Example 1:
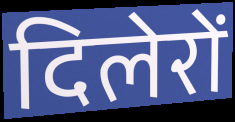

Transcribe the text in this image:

दिलेरों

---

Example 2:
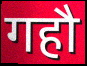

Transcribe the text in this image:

गहौ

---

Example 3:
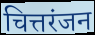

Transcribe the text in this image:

चित्तरंजन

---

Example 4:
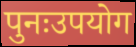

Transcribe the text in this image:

पुनःउपयोग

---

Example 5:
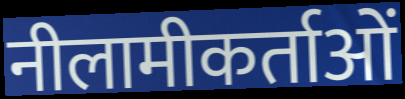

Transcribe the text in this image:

नीलामीकर्ताओं